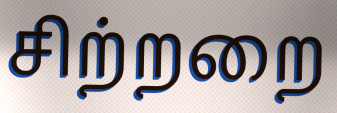
சிற்றறை